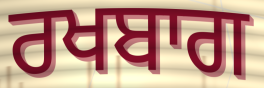
ਰਖਬਾਗ